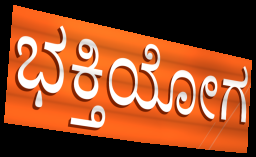
ಭಕ್ತಿಯೋಗ